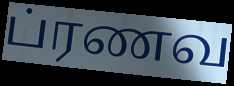
ப்ரணவ